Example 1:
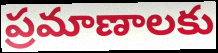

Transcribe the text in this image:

ప్రమాణాలకు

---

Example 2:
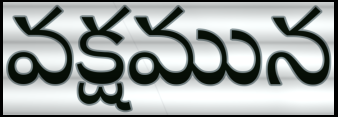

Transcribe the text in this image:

వక్షమున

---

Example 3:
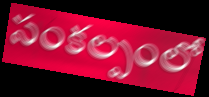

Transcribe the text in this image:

సంకల్పంలో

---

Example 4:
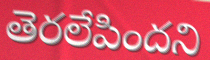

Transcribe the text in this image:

తెరలేపిందని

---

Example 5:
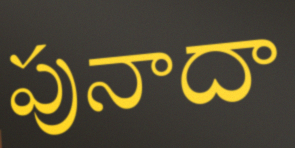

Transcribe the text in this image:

పునాదా